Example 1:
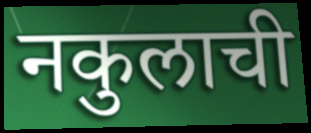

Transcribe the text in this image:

नकुलाची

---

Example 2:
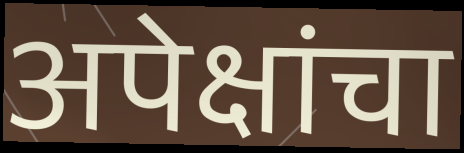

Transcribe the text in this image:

अपेक्षांचा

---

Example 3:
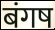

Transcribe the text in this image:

बंगष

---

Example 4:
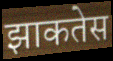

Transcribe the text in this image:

झाकतेस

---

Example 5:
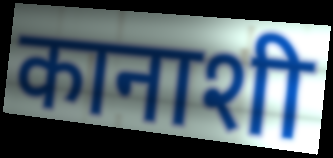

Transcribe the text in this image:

कानाशी